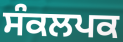
ਸੰਕਲਪਕ